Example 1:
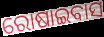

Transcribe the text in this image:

ରୋଷାଇବାସ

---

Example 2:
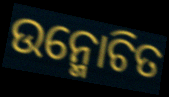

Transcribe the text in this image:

ଉନ୍ମୋଚିତ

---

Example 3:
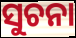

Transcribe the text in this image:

ସୁଚନା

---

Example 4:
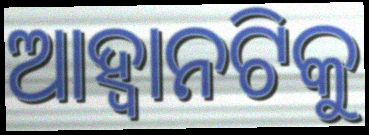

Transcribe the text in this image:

ଆହ୍ଵାନଟିକୁ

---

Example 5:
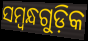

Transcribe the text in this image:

ସମ୍ବନ୍ଧଗୁଡ଼ିକ